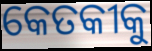
କେତକୀକୁ